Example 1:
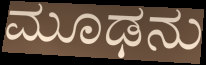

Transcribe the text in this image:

ಮೂಢನು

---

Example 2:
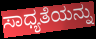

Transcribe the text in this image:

ಸಾಧ್ಯತೆಯನ್ನು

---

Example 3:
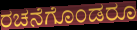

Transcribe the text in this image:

ರಚನೆಗೊಂಡರೂ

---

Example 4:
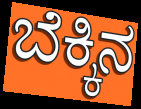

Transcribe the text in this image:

ಬೆಕ್ಕಿನ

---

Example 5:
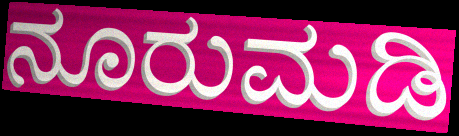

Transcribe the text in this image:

ನೂರುಮಡಿ